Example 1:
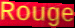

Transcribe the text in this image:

Rouge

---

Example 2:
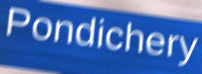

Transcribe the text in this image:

Pondichery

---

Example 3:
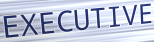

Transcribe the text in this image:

EXECUTIVE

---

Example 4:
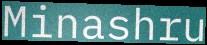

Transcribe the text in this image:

Minashru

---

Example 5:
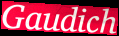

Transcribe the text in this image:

Gaudich